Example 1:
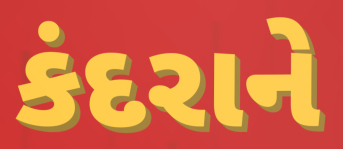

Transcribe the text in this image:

કંદરાને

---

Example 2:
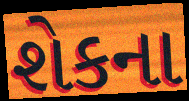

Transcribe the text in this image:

શેકના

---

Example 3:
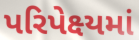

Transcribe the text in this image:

પરિપેક્ષ્યમાં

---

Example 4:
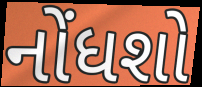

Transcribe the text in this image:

નોંધશો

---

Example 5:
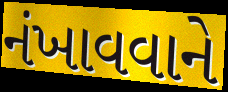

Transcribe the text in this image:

નંખાવવાને